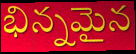
భిన్నమైన